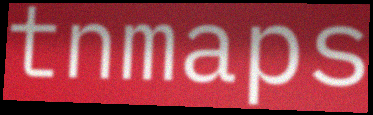
tnmaps